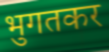
भुगतकर